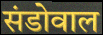
संडोवाल